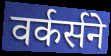
वर्कर्सने